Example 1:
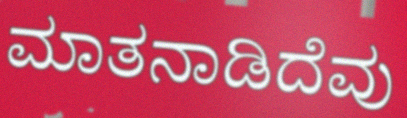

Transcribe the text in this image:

ಮಾತನಾಡಿದೆವು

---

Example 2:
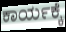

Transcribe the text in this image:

ಕಾರ್ಯಕ್ಕೆ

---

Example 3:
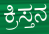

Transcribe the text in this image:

ಕ್ರಿಸ್ತನ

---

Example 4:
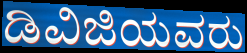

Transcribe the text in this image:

ಡಿವಿಜಿಯವರು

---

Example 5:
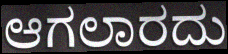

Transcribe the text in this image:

ಆಗಲಾರದು